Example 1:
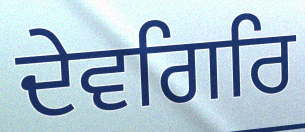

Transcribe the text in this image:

ਦੇਵਗਿਰਿ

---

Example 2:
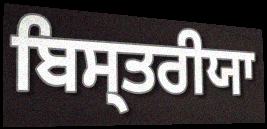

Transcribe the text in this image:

ਬਿਸ੍ਤਰੀਯਾ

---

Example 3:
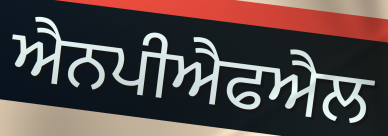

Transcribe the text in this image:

ਐਨਪੀਐਫਐਲ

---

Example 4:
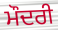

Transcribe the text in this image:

ਮੌਦਰੀ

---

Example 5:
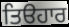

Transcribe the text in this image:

ਤਿੳਹਾਰ